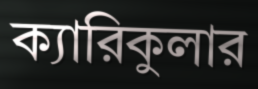
ক্যারিকুলার